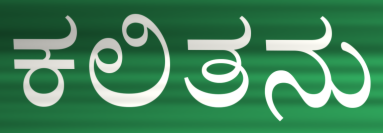
ಕಲಿತನು